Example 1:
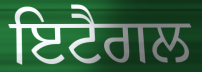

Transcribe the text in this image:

ਇਟੈਗਲ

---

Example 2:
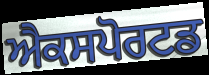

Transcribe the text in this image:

ਐਕਸਪੋਰਟਡ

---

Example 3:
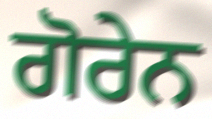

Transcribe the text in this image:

ਗੋਰੇਨ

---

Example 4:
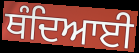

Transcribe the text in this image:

ਥੰਦਿਆਈ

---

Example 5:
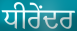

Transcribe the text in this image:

ਧੀਰੇਂਦਰ